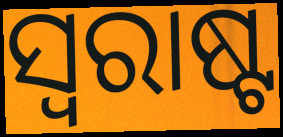
ସ୍ୱରାଷ୍ଟ